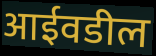
आईवडील